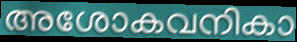
അശോകവനികാ